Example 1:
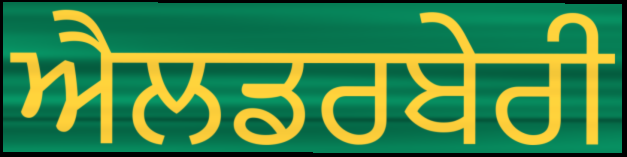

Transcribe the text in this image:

ਐਲਡਰਬੇਰੀ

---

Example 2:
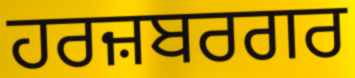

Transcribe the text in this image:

ਹਰਜ਼ਬਰਗਰ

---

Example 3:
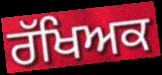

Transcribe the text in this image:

ਰੱਖਿਅਕ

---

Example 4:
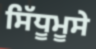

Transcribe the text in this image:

ਸਿੱਧੂਮੂਸੇ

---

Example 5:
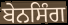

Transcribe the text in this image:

ਬੇਨਸਿੰਗ